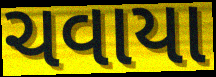
ચવાયા